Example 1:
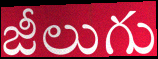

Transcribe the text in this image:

జీలుగు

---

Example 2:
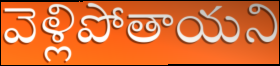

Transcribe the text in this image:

వెళ్లిపోతాయని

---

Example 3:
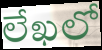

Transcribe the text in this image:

లేఖలో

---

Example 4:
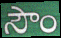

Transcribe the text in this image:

సౌం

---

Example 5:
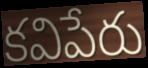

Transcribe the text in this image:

కవిపేరు